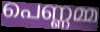
പെണ്ണമ്മ